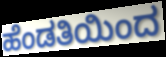
ಹೆಂಡತಿಯಿಂದ